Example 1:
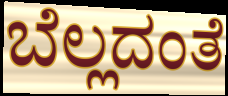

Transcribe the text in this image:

ಬೆಲ್ಲದಂತೆ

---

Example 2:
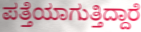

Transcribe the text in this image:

ಪತ್ತೆಯಾಗುತ್ತಿದ್ದಾರೆ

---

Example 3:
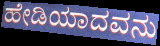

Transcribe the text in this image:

ಹೇಡಿಯಾದವನು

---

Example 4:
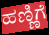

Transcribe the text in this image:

ಹಣ್ಣಿಗೆ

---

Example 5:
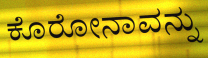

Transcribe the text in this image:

ಕೊರೋನಾವನ್ನು